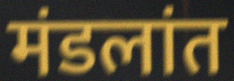
मंडलांत